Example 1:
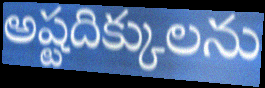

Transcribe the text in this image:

అష్టదిక్కులను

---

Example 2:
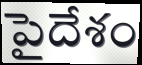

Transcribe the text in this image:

పైదేశం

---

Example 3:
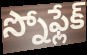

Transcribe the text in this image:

స్నోఫ్లేక్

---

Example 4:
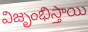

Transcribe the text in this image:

విజృంభిస్తాయి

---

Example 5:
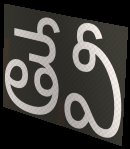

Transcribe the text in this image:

తేవీ